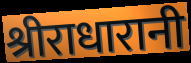
श्रीराधारानी